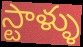
స్టాళ్ళు